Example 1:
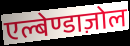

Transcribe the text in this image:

एल्बेण्डाज़ोल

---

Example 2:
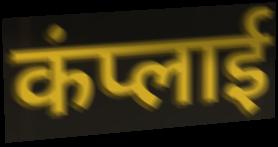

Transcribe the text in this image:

कंप्लाई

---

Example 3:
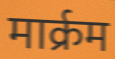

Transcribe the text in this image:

मार्क्रम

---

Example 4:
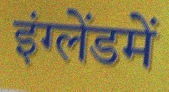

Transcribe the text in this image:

इंग्लेंडमें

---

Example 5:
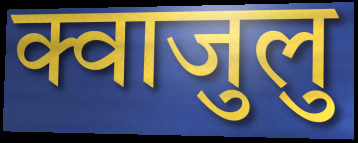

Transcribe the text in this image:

क्वाजुलु